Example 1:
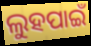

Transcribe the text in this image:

ଲୁହପାଇଁ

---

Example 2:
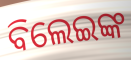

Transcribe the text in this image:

ବିଲେଇଙ୍କ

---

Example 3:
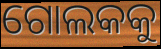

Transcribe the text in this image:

ଗୋଲକକୁ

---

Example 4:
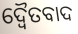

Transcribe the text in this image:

ଦ୍ୱୈତବାଦ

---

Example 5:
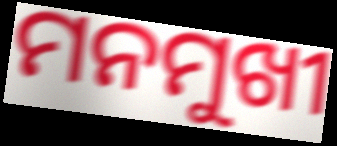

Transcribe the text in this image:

ମନମୁଖୀ